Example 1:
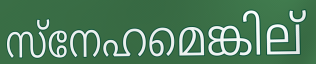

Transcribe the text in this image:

സ്നേഹമെങ്കില്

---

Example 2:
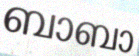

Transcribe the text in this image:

ബാബാ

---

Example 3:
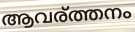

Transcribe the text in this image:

ആവര്ത്തനം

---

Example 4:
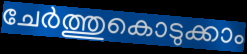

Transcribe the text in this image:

ചേർത്തുകൊടുക്കാം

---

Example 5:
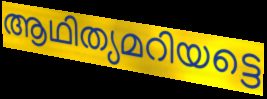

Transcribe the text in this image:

ആഥിത്യമറിയട്ടെ